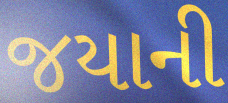
જયાની